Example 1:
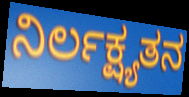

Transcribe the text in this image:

ನಿರ್ಲಕ್ಷ್ಯತನ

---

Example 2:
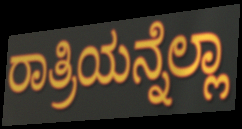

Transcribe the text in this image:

ರಾತ್ರಿಯನ್ನೆಲ್ಲಾ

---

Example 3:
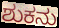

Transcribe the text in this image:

ಶುಕನು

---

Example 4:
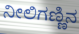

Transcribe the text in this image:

ನೀಲಿಗಣ್ಣಿನ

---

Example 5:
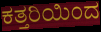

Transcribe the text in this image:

ಕತ್ತರಿಯಿಂದ